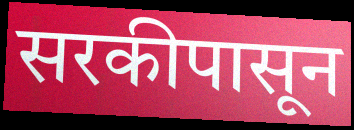
सरकीपासून